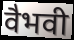
वैभवी